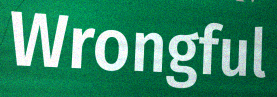
Wrongful